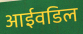
आईवडिल